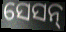
ସେସନ୍